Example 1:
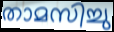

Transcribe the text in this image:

താമസിച്ചു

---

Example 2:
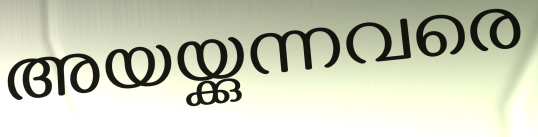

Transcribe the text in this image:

അയയ്ക്കുന്നവരെ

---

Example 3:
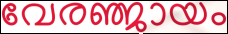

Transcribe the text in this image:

വേരഞ്ജായം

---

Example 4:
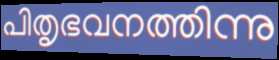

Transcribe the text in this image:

പിതൃഭവനത്തിന്നു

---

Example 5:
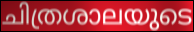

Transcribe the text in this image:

ചിത്രശാലയുടെ